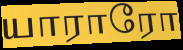
யாராரோ